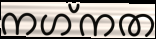
നഗ്‌നത